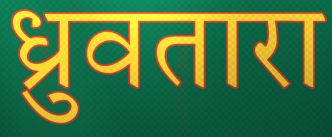
ध्रुवतारा